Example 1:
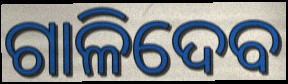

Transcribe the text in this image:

ଗାଳିଦେବ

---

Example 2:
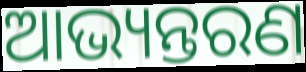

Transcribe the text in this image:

ଆଭ୍ୟନ୍ତରଣ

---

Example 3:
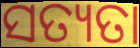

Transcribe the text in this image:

ସତ୍ୟତା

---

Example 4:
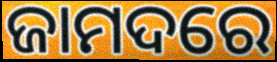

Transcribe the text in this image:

ଜାମଦରେ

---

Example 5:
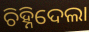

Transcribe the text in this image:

ଚିହ୍ନିଦେଲା